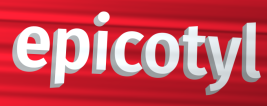
epicotyl